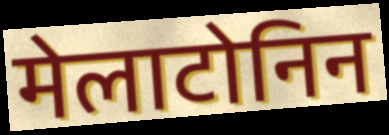
मेलाटोनिन